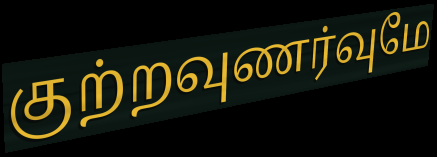
குற்றவுணர்வுமே